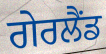
ਗੇਰਲੈਂਡ